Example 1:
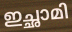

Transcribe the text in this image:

ഇച്ഛാമി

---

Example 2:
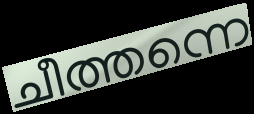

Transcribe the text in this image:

ചീത്തന്നെ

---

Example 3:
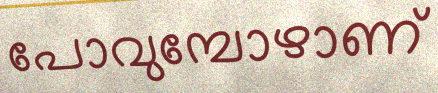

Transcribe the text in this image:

പോവുമ്പോഴാണ്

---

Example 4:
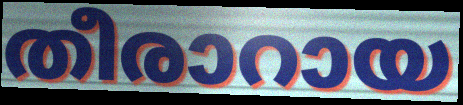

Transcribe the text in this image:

തീരാറായ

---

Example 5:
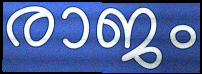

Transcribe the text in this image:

രാജം